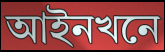
আইনখনে